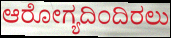
ಆರೋಗ್ಯದಿಂದಿರಲು